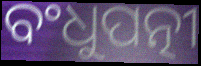
ବଂଧୁପତ୍ନୀ